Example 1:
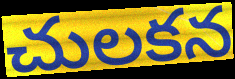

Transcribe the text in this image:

చులకన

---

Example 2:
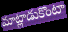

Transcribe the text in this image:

మాట్లాడుకొంటా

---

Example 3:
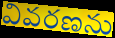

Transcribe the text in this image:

వివరణను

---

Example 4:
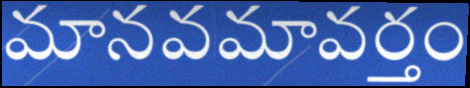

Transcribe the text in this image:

మానవమావర్తం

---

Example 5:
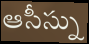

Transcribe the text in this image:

ఆసీస్ను